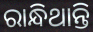
ରାନ୍ଧିଥାନ୍ତି